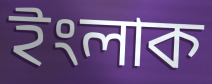
ইংলাক